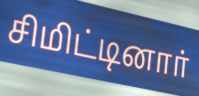
சிமிட்டினார்